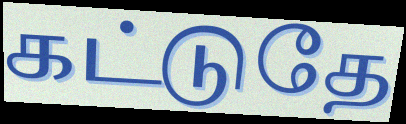
கட்டுதே